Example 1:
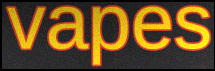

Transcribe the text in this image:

vapes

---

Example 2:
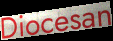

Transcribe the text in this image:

Diocesan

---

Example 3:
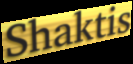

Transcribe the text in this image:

Shaktis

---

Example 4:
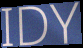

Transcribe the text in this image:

IDY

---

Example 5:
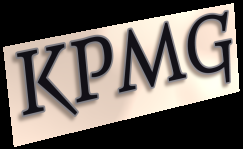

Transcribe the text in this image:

KPMG